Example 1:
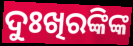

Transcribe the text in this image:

ଦୁଃଖିରଙ୍କିଙ୍କ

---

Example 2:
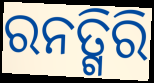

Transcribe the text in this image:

ରନତ୍ଗିରି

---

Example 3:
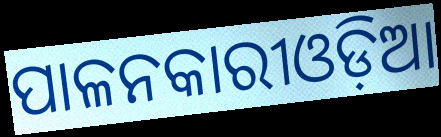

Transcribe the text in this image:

ପାଳନକାରୀଓଡ଼ିଆ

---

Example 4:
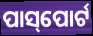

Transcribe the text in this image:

ପାସ୍‌ପୋର୍ଟ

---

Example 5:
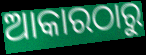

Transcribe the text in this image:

ଆକାରଠାରୁ